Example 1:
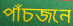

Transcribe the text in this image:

পাঁচজনে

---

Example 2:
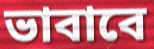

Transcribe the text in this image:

ভাবাবে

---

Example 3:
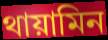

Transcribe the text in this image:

থায়ামিন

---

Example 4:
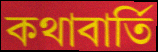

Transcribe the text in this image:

কথাবার্তি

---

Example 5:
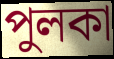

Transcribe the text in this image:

পুলকা